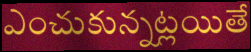
ఎంచుకున్నట్లయితే